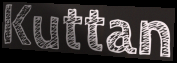
Kuttan